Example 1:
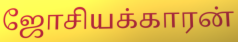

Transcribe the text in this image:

ஜோசியக்காரன்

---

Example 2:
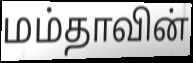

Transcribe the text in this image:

மம்தாவின்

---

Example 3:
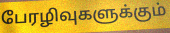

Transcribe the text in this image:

பேரழிவுகளுக்கும்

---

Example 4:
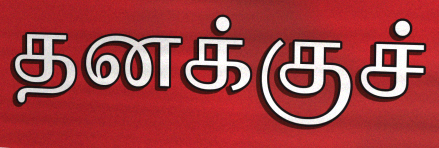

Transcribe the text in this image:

தனக்குச்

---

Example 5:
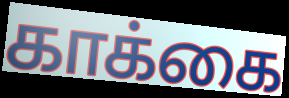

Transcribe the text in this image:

காக்கை